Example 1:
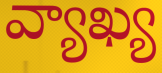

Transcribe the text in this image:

వ్యాఖ్య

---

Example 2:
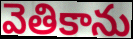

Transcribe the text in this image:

వెతికాను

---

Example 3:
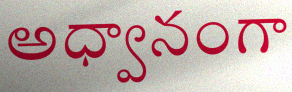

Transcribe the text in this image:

అధ్వానంగా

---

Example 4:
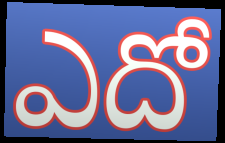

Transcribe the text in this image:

ఎదో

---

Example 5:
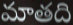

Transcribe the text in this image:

మాతది